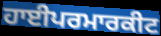
ਹਾਈਪਰਮਾਰਕੀਟ